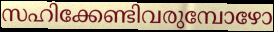
സഹിക്കേണ്ടിവരുമ്പോഴോ